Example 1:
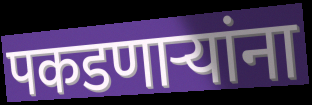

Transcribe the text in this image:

पकडणाऱ्यांना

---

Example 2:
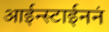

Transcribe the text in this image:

आईन्स्टाईननं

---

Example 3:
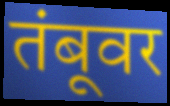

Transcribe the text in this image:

तंबूवर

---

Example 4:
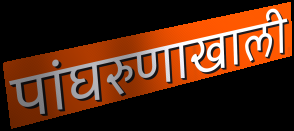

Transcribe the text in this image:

पांघरुणाखाली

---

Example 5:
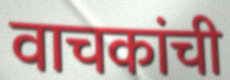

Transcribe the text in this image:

वाचकांची